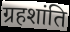
ग्रहशांति